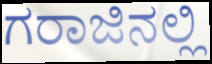
ಗರಾಜಿನಲ್ಲಿ